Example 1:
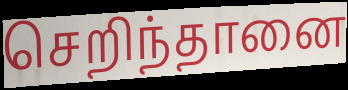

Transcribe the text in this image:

செறிந்தானை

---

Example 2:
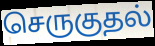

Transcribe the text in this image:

செருகுதல்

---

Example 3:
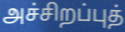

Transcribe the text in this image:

அச்சிறப்புத்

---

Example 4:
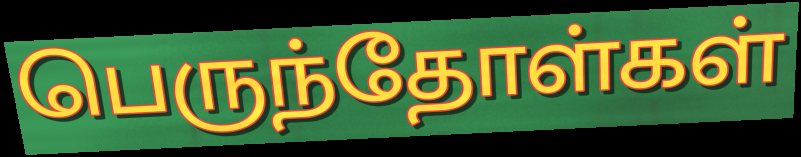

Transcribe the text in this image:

பெருந்தோள்கள்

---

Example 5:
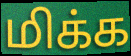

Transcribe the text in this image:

மிக்க